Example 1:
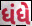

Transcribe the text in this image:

ધંધે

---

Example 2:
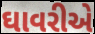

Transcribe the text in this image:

ઘાવરીએ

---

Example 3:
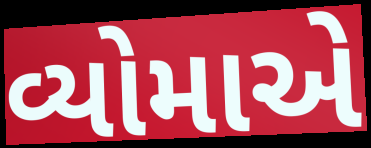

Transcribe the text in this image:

વ્યોમાએ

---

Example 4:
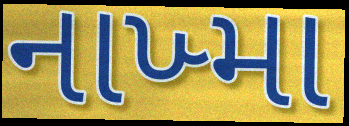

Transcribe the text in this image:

નાખ્મા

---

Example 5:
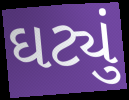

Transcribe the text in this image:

ઘટ્યું